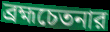
ব্রহ্মচেতনার